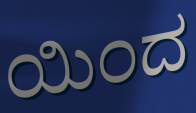
ಯಿಂದ